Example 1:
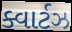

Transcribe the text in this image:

ક્વાર્ટઝ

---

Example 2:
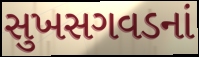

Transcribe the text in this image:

સુખસગવડનાં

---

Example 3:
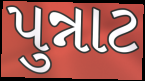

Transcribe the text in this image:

પુન્નાટ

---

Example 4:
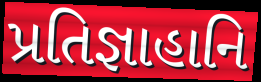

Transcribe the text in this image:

પ્રતિજ્ઞાહાનિ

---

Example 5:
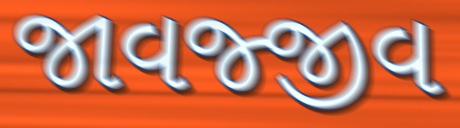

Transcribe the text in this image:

જાવજ્જીવ